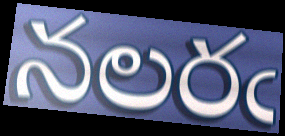
నలరఁ